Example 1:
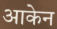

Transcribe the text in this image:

आकेन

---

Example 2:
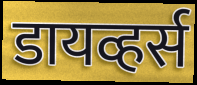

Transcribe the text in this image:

डायव्हर्स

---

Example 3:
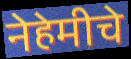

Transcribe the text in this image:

नेहेमीचे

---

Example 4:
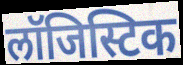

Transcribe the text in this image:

लॉजिस्टिक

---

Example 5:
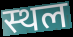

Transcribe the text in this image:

स्थल